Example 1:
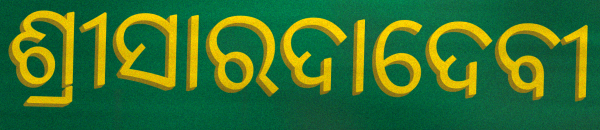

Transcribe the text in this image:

ଶ୍ରୀସାରଦାଦେବୀ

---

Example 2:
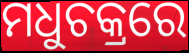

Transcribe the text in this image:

ମଧୁଚକ୍ରରେ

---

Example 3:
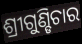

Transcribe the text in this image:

ଶ୍ରୀଗୁଣ୍ଡିଚାର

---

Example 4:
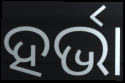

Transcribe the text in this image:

ହର୍ଭା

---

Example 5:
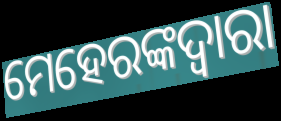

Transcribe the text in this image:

ମେହେରଙ୍କଦ୍ଵାରା